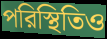
পরিস্থিতিও